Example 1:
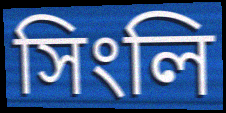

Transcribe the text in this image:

সিংলি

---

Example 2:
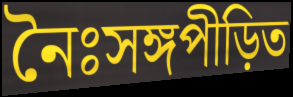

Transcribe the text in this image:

নৈঃসঙ্গপীড়িত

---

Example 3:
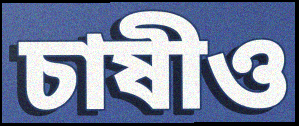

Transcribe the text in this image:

চাষীও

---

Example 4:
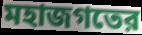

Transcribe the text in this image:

মহাজগতের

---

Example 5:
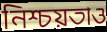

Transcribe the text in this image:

নিশ্চয়তাও